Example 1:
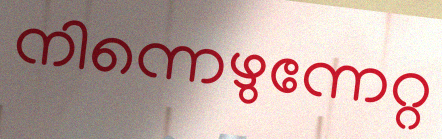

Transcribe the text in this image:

നിന്നെഴുന്നേറ്റ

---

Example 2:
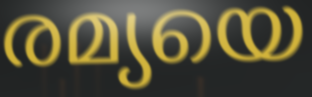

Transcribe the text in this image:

രമ്യയെ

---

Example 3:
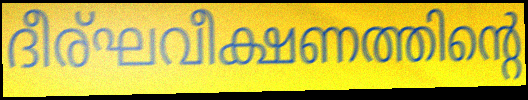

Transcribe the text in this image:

ദീര്ഘവീക്ഷണത്തിന്റെ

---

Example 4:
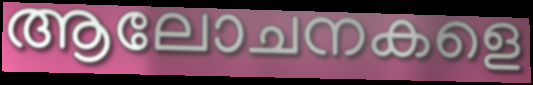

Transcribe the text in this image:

ആലോചനകളെ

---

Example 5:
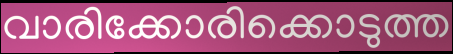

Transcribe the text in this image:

വാരിക്കോരിക്കൊടുത്ത